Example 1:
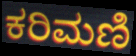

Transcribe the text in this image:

ಕರಿಮಣಿ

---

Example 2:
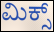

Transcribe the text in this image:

ಮಿಕ್ಸ್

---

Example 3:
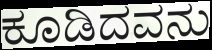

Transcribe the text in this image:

ಕೂಡಿದವನು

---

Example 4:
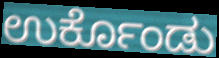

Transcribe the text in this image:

ಉರ್ಕೊಂಡು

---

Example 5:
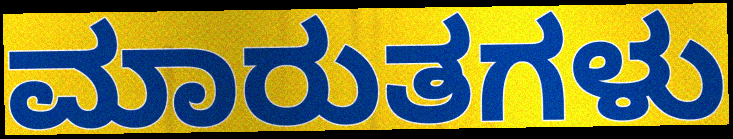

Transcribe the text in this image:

ಮಾರುತಗಳು